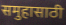
समुहासाठी